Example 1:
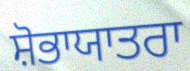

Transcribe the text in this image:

ਸ਼ੋਭਾਯਾਤਰਾ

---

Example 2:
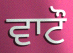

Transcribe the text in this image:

ਵਾਟੌ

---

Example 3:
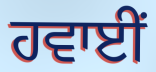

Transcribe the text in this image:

ਹਵਾਈਂ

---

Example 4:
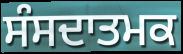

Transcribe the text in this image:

ਸੰਸਦਾਤਮਕ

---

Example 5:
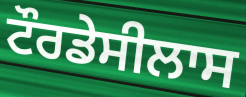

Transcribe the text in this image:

ਟੌਰਡੇਸੀਲਾਸ